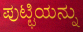
ಪುಟ್ಟಿಯನ್ನು